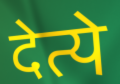
देत्ये